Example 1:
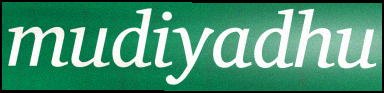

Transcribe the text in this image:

mudiyadhu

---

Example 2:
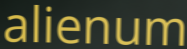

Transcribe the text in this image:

alienum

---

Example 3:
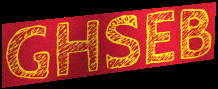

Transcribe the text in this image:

GHSEB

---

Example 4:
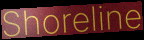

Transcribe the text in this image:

Shoreline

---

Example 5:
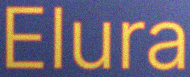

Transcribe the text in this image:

Elura